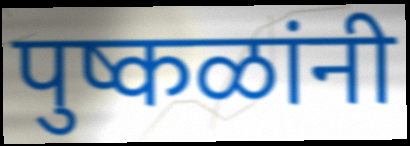
पुष्कळांनी